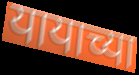
यायाच्या